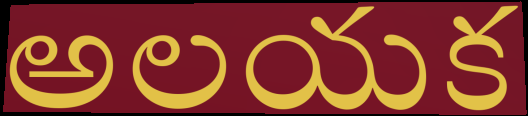
అలయక